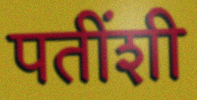
पतींशी